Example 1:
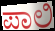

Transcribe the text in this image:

ಪಾಲಿ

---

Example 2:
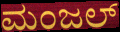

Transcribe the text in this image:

ಮಂಜಲ್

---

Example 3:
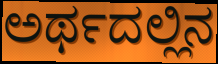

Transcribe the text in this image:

ಅರ್ಥದಲ್ಲಿನ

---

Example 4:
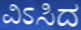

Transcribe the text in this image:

ವಿಽಸಿದ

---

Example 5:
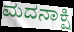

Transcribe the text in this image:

ಮದನಾಕ್ಷಿ